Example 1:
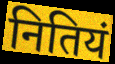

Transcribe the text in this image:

नितियं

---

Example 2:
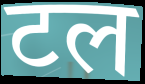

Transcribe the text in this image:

टल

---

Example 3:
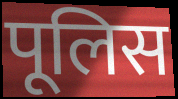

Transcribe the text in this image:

पूलिस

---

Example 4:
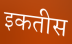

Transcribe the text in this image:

इकतीस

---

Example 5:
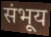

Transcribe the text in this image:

संभूय